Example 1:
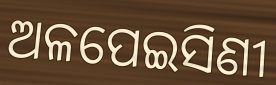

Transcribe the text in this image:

ଅଳପେଇସିଣୀ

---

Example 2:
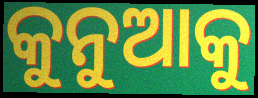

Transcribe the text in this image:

କୁନୁଆକୁ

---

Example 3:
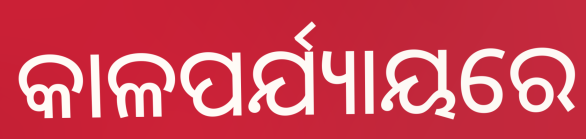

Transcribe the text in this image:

କାଳପର୍ଯ୍ୟାୟରେ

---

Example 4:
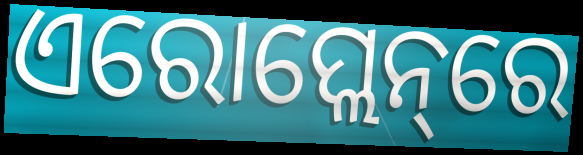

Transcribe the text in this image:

ଏରୋପ୍ଲେନ୍‌ରେ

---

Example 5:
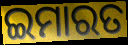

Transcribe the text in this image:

ଇମାରତ